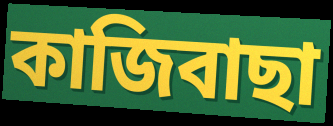
কাজিবাছা